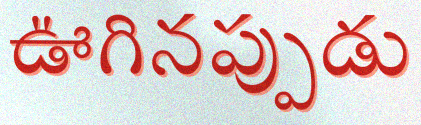
ఊగినప్పుడు